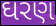
ઘરણ